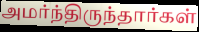
அமர்ந்திருந்தார்கள்